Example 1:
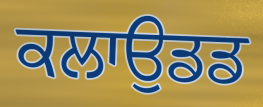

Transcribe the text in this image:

ਕਲਾਉਡਡ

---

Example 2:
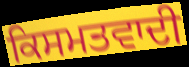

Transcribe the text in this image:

ਕਿਸਮਤਵਾਦੀ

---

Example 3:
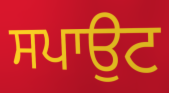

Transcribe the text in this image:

ਸਪਾਉਟ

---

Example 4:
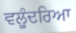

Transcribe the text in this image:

ਵਲੂੰਦਰਿਆ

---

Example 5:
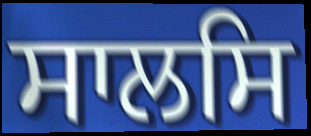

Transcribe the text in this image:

ਸਾਲਸਿ